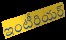
ఇంటీరియర్